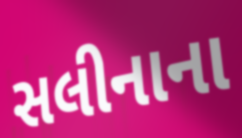
સલીનાના